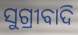
ସୁଗ୍ରୀବାଦି